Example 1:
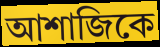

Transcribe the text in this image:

আশাজিকে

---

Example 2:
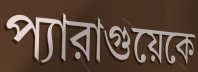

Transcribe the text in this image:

প্যারাগুয়েকে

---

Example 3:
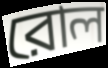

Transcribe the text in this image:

রোল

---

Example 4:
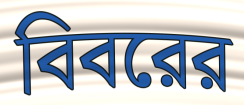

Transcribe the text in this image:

বিবরের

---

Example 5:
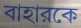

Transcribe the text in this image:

বাহারকে